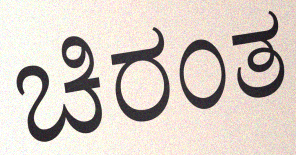
ಚಿರಂತ